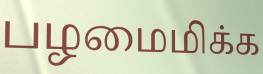
பழமைமிக்க